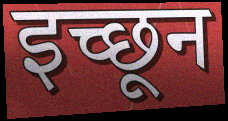
इच्छून